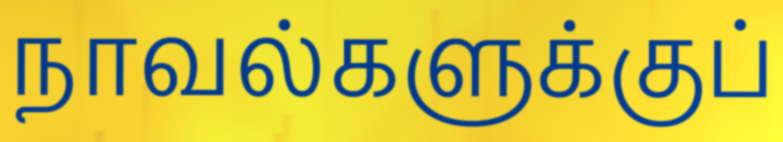
நாவல்களுக்குப்